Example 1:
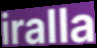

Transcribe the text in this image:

iralla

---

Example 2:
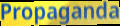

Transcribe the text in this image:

Propaganda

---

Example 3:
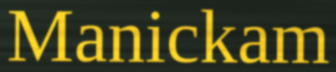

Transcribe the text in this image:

Manickam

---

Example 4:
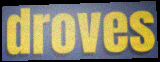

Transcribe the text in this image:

droves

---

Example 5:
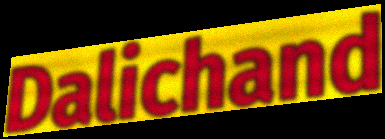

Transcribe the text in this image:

Dalichand